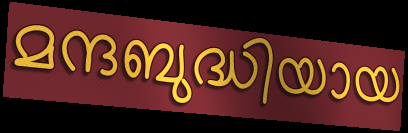
മന്ദബുദ്ധിയായ